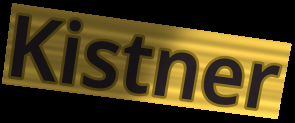
Kistner